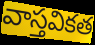
వాస్తవికత